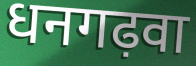
धनगढ़वा